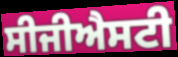
ਸੀਜੀਐਸਟੀ